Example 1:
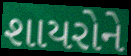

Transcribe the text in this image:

શાયરોને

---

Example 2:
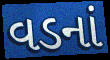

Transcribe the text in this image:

વડનાં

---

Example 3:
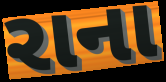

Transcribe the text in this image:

રાના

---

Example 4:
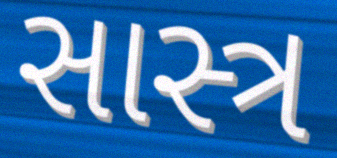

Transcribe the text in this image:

સાસ્ત્ર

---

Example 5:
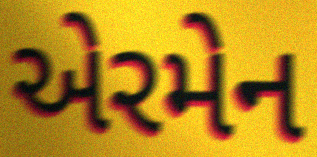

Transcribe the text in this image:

એરમેન